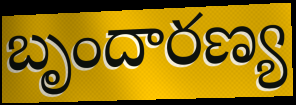
బృందారణ్య